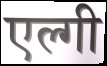
एल्गी